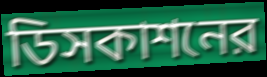
ডিসকাশনের